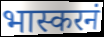
भास्करनं